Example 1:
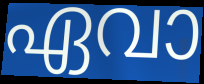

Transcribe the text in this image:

ഏവാ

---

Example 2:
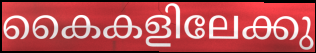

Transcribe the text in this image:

കൈകളിലേക്കു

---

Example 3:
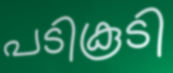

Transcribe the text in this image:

പടികൂടി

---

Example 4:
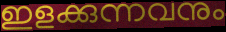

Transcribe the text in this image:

ഇളക്കുന്നവനും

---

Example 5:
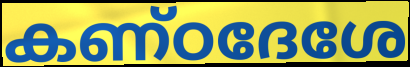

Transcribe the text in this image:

കണ്ഠദേശേ